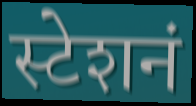
स्टेशनं